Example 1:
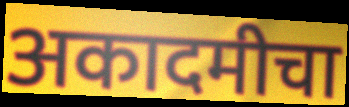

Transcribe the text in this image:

अकादमीचा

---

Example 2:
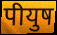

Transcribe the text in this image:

पीयुष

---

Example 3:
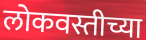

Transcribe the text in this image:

लोकवस्तीच्या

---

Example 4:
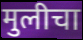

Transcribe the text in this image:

मुलीचा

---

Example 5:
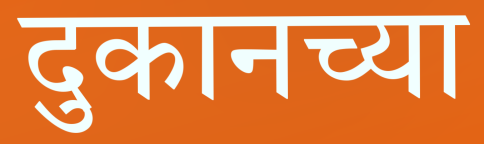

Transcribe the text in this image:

दुकानच्या